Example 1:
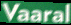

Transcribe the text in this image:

Vaaral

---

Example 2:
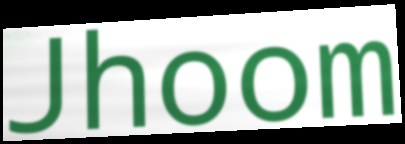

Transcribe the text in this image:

Jhoom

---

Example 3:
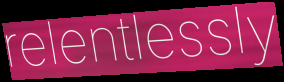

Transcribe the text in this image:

relentlessly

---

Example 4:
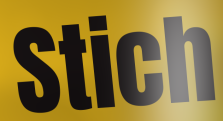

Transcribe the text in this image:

Stich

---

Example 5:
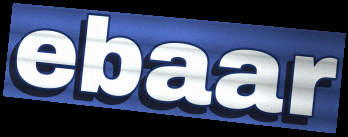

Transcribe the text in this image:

ebaar